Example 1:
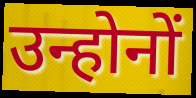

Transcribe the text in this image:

उन्होनों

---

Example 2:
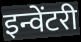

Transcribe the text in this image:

इन्वेंटरी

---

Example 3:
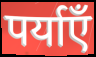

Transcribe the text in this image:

पर्याएँ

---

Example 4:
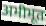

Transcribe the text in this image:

अभीभूत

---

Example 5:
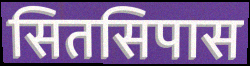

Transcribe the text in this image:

सितसिपास